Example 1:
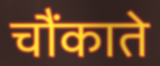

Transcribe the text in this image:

चौंकाते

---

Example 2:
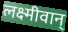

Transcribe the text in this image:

लक्ष्मीवान्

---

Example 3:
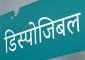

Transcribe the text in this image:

डिस्पोजिबल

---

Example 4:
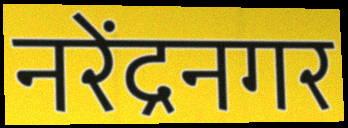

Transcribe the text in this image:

नरेंद्रनगर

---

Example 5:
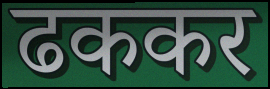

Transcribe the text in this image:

ढककर